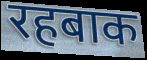
रहबाक